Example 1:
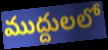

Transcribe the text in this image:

ముద్దులలో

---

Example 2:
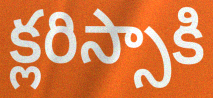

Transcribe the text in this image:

క్లరిస్సాకి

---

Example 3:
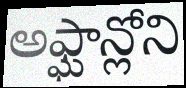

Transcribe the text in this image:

అఫ్ఘాన్లోని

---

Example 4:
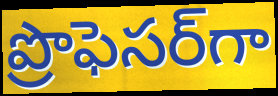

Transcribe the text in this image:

ప్రొఫెసర్‌గా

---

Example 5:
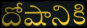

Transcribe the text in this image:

దోషానికి